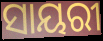
ସାୟରୀ